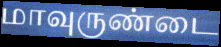
மாவுருண்டை